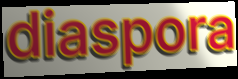
diaspora